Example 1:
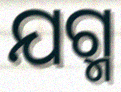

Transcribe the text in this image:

ଯଗ୍ମ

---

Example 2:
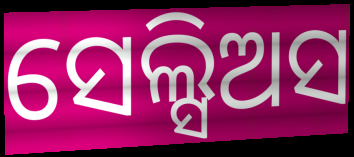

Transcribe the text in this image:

ସେଲ୍ସିଅସ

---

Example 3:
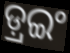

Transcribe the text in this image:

ଡ଼୍ରଇଂ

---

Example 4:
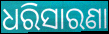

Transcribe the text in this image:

ଧରିସାରଣା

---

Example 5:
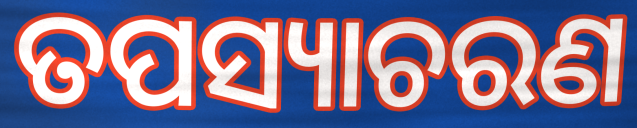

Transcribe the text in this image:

ତପସ୍ୟାଚରଣ